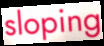
sloping